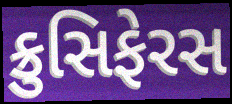
ક્રુસિફેરસ